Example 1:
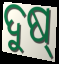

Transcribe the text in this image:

ଦୁଷ୍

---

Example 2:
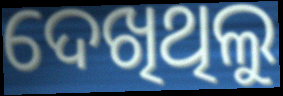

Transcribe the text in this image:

ଦେଖିଥିଲୁ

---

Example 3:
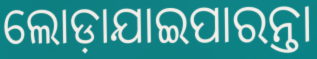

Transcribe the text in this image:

ଲୋଡ଼ାଯାଇପାରନ୍ତା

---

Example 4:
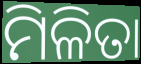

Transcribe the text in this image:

ମିଳିତା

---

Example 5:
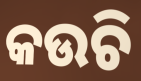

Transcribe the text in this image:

କଉଚି